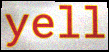
yell